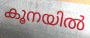
കൂനയിൽ